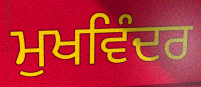
ਮੁਖਵਿੰਦਰ